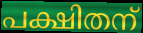
പക്ഷിതന്